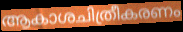
ആകാശചിത്രീകരണം